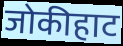
जोकीहाट